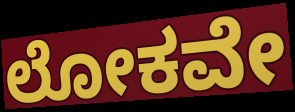
ಲೋಕವೇ